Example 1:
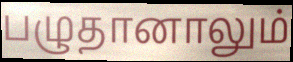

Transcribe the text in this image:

பழுதானாலும்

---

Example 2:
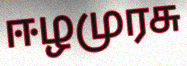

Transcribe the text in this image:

ஈழமுரசு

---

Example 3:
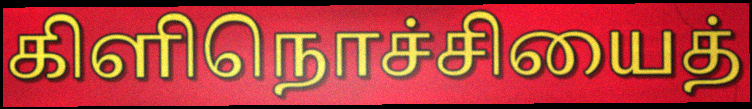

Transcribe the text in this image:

கிளிநொச்சியைத்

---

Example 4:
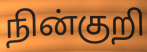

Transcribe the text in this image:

நின்குறி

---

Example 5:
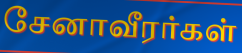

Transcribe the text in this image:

சேனாவீரர்கள்